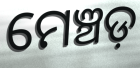
ମେଞ୍ଚଡ଼